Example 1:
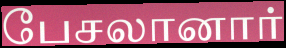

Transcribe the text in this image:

பேசலானார்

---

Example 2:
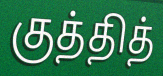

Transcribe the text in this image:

குத்தித்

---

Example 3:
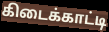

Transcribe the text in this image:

கிடைக்காட்டி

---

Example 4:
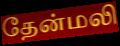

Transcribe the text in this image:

தேன்மலி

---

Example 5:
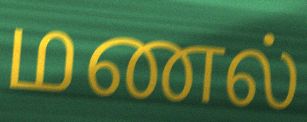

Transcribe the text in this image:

மணல்